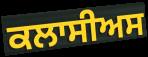
ਕਲਾਸੀਅਸ